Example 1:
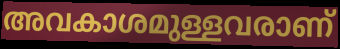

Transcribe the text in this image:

അവകാശമുള്ളവരാണ്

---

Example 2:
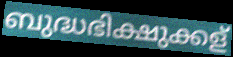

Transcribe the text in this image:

ബുദ്ധഭിക്ഷുക്കള്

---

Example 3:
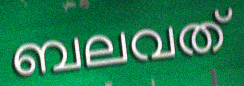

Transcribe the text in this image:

ബലവത്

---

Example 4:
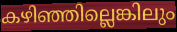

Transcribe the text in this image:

കഴിഞ്ഞില്ലെങ്കിലും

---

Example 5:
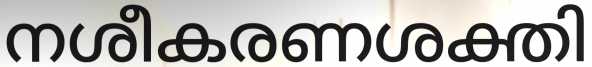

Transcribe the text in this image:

നശീകരണശക്തി